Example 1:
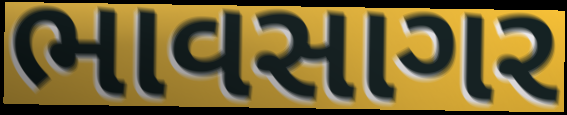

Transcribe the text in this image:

ભાવસાગર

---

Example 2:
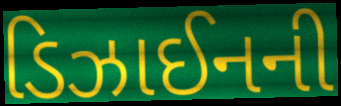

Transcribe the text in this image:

ડિઝાઈનની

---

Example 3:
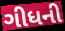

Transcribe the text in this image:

ગીધની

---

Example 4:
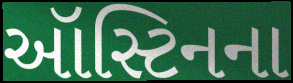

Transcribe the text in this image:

ઑસ્ટિનના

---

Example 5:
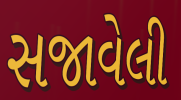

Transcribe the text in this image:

સજાવેલી